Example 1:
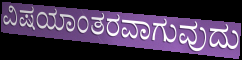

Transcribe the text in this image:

ವಿಷಯಾಂತರವಾಗುವುದು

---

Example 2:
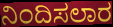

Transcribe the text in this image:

ನಿಂದಿಸಲಾರ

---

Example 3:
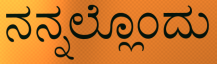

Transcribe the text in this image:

ನನ್ನಲ್ಲೊಂದು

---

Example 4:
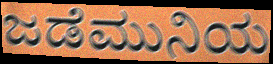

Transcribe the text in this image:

ಜಡೆಮುನಿಯ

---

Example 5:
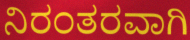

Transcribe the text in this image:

ನಿರಂತರವಾಗಿ